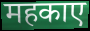
महकाए